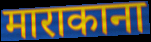
माराकाना